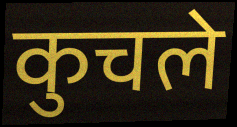
कुचले